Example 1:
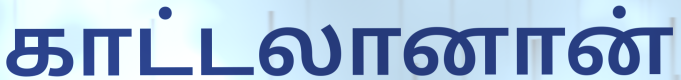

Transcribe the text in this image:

காட்டலானான்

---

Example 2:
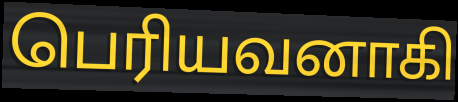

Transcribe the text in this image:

பெரியவனாகி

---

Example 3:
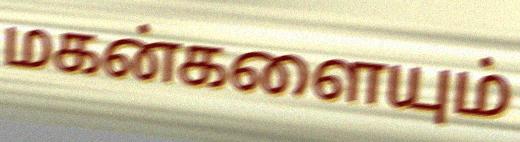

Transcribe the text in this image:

மகன்களையும்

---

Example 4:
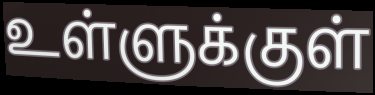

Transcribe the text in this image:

உள்ளுக்குள்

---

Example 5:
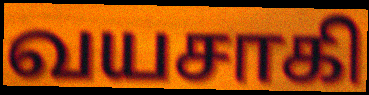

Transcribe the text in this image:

வயசாகி